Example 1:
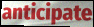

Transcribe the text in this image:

anticipate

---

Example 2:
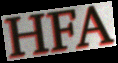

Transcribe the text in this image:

HFA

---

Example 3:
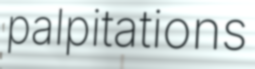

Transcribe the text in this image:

palpitations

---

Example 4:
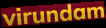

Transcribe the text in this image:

virundam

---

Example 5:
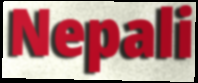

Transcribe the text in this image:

Nepali